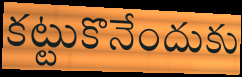
కట్టుకొనేందుకు